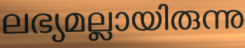
ലഭ്യമല്ലായിരുന്നു